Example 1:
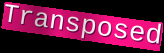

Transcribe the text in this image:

Transposed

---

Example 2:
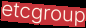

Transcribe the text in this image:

etcgroup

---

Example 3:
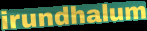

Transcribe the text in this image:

irundhalum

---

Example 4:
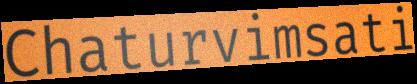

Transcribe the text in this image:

Chaturvimsati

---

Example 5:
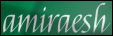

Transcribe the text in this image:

amiraesh